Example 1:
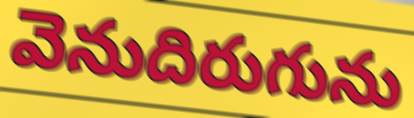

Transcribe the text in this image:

వెనుదిరుగును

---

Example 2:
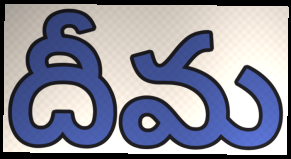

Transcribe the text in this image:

దీమ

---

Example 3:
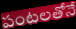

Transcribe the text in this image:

పంటలతోనే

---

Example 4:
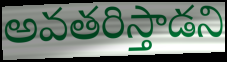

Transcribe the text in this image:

అవతరిస్తాడని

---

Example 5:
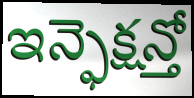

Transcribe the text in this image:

ఇన్ఫెక్షన్తో